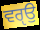
ਵਰੵਉ